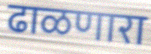
ढाळणारा